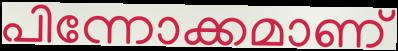
പിന്നോക്കമാണ്